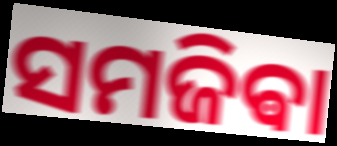
ସମଜିଵା